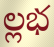
ల్లభ